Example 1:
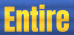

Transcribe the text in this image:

Entire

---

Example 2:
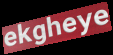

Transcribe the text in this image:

ekgheye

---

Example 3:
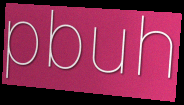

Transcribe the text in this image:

pbuh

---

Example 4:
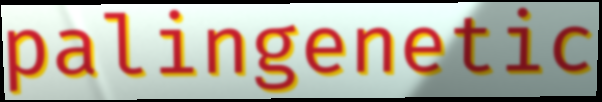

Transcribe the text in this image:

palingenetic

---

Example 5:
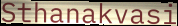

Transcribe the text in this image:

Sthanakvasi